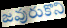
జవురుకొని